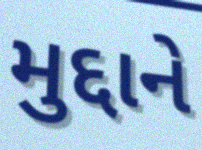
મુદ્દાને